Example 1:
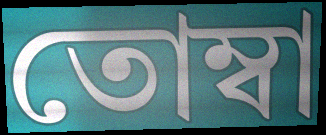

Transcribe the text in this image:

তোম্বা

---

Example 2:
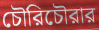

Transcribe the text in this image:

চৌরিচৌরার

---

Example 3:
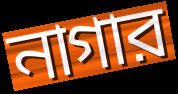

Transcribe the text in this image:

নাগার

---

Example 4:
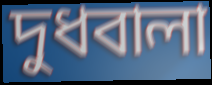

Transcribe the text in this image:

দুধবালা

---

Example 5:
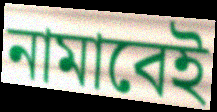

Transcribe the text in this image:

নামাবেই